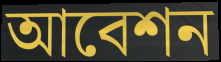
আবেশন